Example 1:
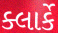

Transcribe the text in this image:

ક્લાર્કે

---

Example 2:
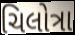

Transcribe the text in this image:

ચિલોત્રા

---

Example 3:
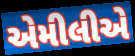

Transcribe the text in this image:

એમીલીએ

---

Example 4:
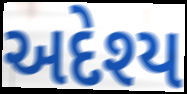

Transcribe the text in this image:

અદેશ્ય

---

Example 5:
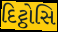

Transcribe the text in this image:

દિટ્ઠોસિ